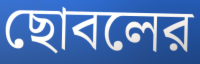
ছোবলের